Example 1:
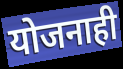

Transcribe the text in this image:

योजनाही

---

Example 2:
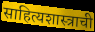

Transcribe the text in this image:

साहित्यशास्त्राची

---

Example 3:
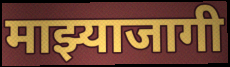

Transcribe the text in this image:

माझ्याजागी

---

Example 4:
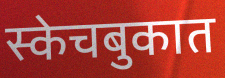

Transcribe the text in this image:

स्केचबुकात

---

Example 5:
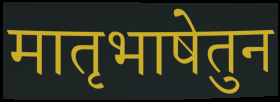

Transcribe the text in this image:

मातृभाषेतुन